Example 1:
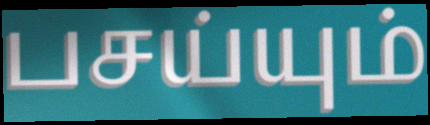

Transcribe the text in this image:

பசய்யும்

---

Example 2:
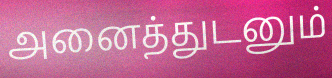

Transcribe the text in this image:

அனைத்துடனும்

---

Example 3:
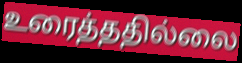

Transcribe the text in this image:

உரைத்ததில்லை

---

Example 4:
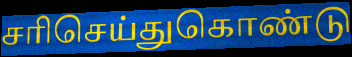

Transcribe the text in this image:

சரிசெய்துகொண்டு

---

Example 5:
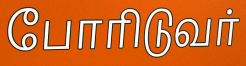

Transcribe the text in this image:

போரிடுவர்